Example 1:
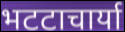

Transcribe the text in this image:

भटटाचार्या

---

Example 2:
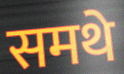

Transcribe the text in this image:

समथे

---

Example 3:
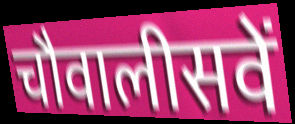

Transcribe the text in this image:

चौवालीसवें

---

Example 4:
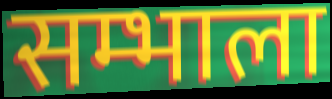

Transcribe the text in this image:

सम्भाला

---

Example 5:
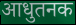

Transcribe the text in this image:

आधुतनक